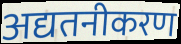
अद्यतनीकरण